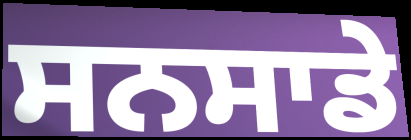
ਸਨਸਾਡੇ